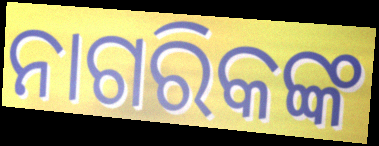
ନାଗରିକଙ୍କ